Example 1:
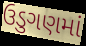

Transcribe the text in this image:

ઉડુગણમાં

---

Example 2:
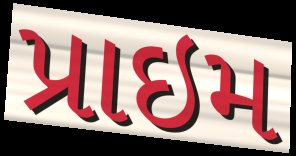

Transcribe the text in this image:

પ્રાઇમ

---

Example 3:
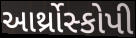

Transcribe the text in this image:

આર્થ્રોસ્કોપી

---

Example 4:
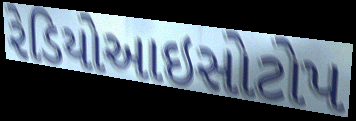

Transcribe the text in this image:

રેડિયોઆઇસોટોપ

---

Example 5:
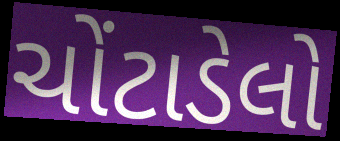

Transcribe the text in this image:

ચોંટાડેલો